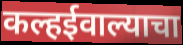
कल्हईवाल्याचा